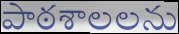
పాఠశాలలను